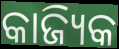
କାଜ୍ୟିକ